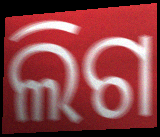
ଲିଗ